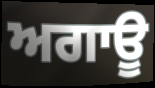
ਅਗਾਊ